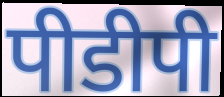
पीडीपी